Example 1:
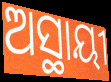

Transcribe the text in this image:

ଅସ୍ଥାୟୀ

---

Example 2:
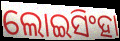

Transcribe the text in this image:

ଲୋଇସିଂହା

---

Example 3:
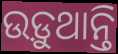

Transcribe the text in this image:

ଉଡ଼ୁଥାନ୍ତି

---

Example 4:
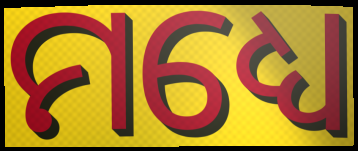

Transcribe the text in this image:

ମଧ୍ୟେ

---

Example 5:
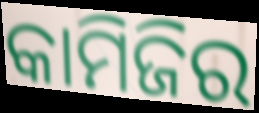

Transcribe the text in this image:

କାମିଜିର